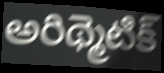
అరిథ్మెటిక్